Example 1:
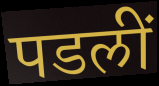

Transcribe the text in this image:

पडलीं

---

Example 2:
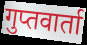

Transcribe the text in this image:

गुप्तवार्ता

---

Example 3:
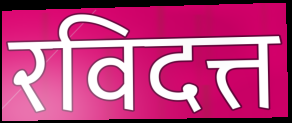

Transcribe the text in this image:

रविदत्त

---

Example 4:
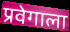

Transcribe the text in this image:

प्रवेगाला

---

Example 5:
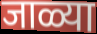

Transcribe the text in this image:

जाळ्या